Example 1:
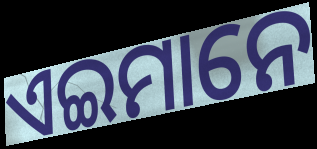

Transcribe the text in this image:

ଏଇମାନେ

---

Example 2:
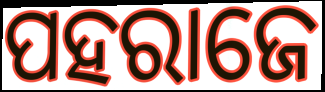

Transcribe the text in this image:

ପହରାଜେ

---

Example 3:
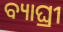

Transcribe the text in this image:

ବ୍ୟାଘ୍ରୀ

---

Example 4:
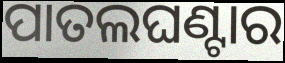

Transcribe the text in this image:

ପାତଲଘଣ୍ଟାର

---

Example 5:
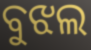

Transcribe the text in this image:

ବୁଝଲ